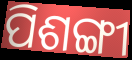
ପିଶଙ୍ଗୀ